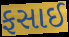
ફસાઈ